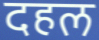
दहल